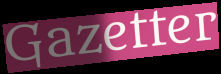
Gazetter